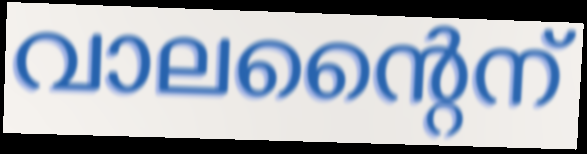
വാലന്റൈന്